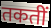
तकतीं